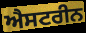
ਐਸਟਰੀਨ